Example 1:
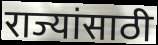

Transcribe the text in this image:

राज्यांसाठी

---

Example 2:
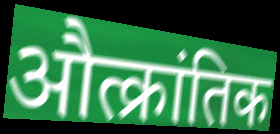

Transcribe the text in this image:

औत्क्रांतिक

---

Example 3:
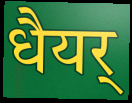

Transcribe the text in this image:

धैयर्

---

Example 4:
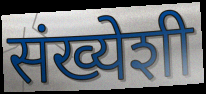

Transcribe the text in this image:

संख्येशी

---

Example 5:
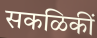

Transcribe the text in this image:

सकळिकीं